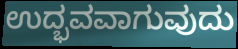
ಉದ್ಭವವಾಗುವುದು